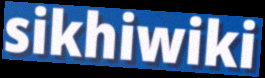
sikhiwiki